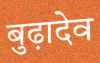
बुढ़ादेव